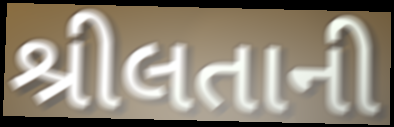
શ્રીલતાની